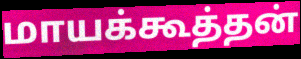
மாயக்கூத்தன்